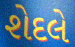
શેદલે